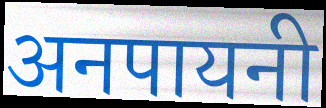
अनपायनी